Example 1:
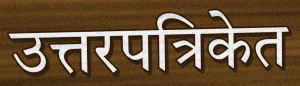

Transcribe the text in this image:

उत्तरपत्रिकेत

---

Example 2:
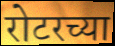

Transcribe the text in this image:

रोटरच्या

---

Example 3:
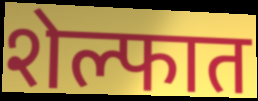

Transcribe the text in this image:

शेल्फात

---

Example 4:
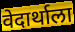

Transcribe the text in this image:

वेदार्थाला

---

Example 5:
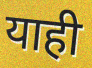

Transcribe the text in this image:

याही